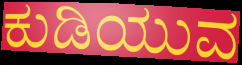
ಕುಡಿಯುವ